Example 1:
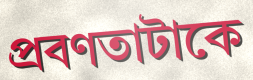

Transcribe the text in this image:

প্রবণতাটাকে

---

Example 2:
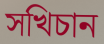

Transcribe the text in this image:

সখিচান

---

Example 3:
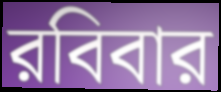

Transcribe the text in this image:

রবিবার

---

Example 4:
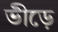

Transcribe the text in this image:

ভীড়ে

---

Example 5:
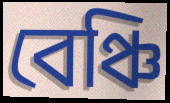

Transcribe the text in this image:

বেঞ্চি